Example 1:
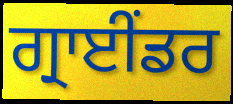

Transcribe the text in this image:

ਗ੍ਰਾਈਂਡਰ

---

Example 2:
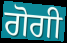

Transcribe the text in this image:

ਗੋਗੀ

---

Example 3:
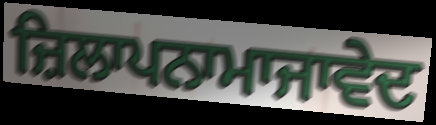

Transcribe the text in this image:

ਜ਼ਿਲਾਪਨਾਮਾਜਾਵੇਦ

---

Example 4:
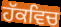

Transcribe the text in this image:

ਹੱਕਵਿਚ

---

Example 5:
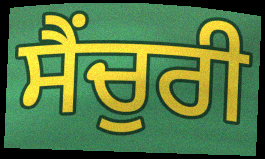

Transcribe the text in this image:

ਸੈਂਚੁਰੀ